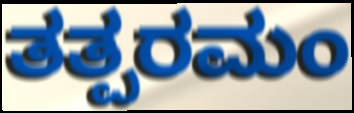
ತತ್ಪರಮಂ